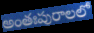
అంతఃపురాలలో